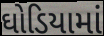
ઘોડિયામાં